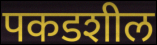
पकडशील